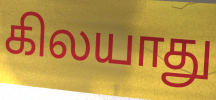
கிலயாது